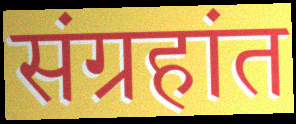
संग्रहांत